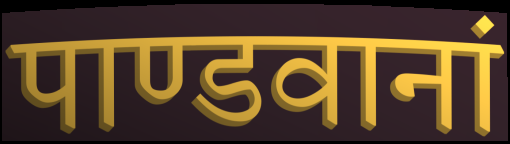
पाण्डवानां